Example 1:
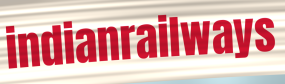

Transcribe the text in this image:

indianrailways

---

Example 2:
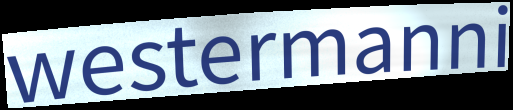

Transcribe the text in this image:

westermanni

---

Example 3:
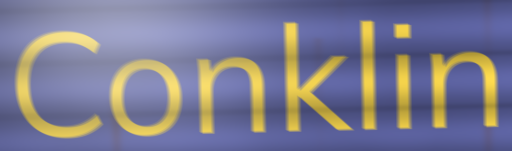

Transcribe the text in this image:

Conklin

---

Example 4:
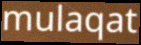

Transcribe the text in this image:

mulaqat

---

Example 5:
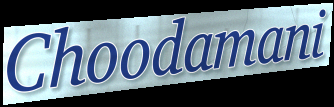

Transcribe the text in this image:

Choodamani